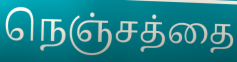
நெஞ்சத்தை